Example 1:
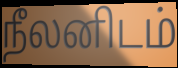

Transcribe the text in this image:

நீலனிடம்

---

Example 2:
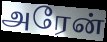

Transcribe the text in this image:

அரேன்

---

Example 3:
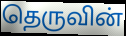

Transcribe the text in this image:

தெருவின்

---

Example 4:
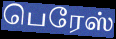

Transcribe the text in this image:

பெரேஸ்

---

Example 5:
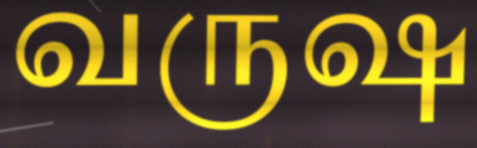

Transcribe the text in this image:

வருஷ